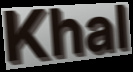
Khal